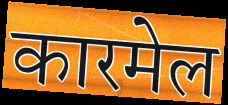
कारमेल